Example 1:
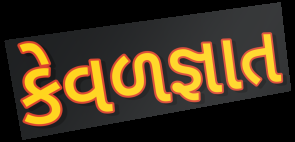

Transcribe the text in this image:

કેવળજ્ઞાત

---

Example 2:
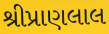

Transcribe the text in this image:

શ્રીપ્રાણલાલ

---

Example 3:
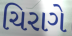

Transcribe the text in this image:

ચિરાગે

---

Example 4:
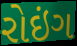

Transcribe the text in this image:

રોઇંગ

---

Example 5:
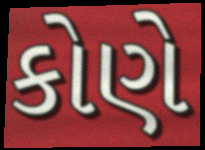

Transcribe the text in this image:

કોણે